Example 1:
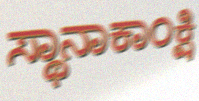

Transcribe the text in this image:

ಸ್ಥಾನಾಕಾಂಕ್ಷಿ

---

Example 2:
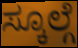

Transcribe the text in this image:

ಸ್ಕೂಲ್ಗೆ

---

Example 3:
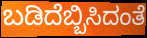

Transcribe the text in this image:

ಬಡಿದೆಬ್ಬಿಸಿದಂತೆ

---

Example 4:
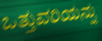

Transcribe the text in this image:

ಒತ್ತುವರಿಯನ್ನು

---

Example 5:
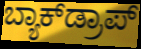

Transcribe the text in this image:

ಬ್ಯಾಕ್‌ಡ್ರಾಪ್